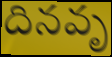
దినవృ